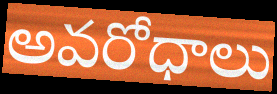
అవరోధాలు